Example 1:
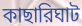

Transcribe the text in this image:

কাছারিঘাট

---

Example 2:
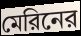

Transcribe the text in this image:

মেরিনের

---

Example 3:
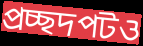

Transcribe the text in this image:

প্রচ্ছদপটও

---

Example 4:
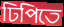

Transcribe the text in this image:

ঢিপিতে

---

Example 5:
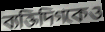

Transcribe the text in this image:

ব্যক্তিদিগকেও